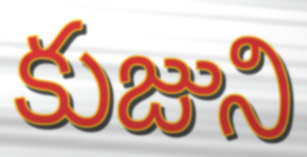
కుజుని